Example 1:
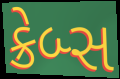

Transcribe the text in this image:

ક્રેબ્સ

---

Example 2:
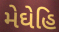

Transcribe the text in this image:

મેઘેહિ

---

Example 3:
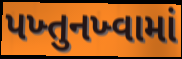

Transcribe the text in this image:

પખ્તુનખ્વામાં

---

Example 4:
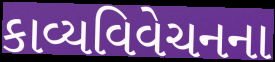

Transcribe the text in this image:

કાવ્યવિવેચનના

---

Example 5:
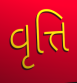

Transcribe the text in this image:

વૃત્તિ